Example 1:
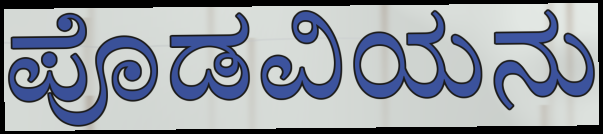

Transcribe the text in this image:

ಪೊಡವಿಯನು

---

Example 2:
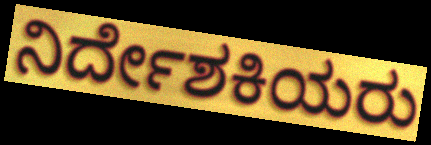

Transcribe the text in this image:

ನಿರ್ದೇಶಕಿಯರು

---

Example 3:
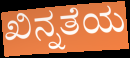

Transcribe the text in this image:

ಖಿನ್ನತೆಯ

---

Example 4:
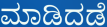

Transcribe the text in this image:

ಮಾಡಿದಡೆ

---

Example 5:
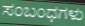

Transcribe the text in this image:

ಸಂಬಂಧಗಳು